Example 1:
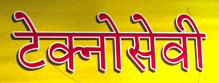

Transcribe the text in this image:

टेक्नोसेवी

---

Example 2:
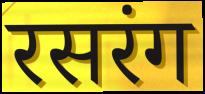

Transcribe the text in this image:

रसरंग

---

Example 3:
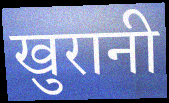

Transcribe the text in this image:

खुरानी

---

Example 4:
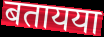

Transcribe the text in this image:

बतायया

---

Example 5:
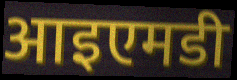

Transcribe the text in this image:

आइएमडी